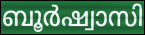
ബൂർഷ്വാസി